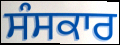
ਸੰਸਕਾਰ